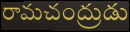
రామచంద్రుడు